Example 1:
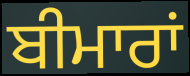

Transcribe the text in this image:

ਬੀਮਾਰਾਂ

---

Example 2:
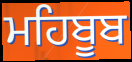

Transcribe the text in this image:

ਮਹਿਬੂਬ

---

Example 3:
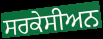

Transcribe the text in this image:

ਸਰਕੇਸੀਅਨ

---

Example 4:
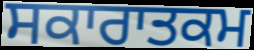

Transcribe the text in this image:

ਸਕਾਰਾਤਕਮ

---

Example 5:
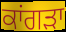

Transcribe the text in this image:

ਕਾਂਗਡ਼ਾ